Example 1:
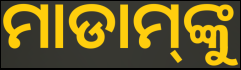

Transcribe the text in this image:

ମାଡାମ୍‌ଙ୍କୁ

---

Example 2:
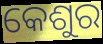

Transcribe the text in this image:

କେଶୁର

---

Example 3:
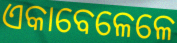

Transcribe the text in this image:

ଏକାବେଳେଳେ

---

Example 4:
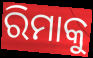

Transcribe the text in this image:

ରିମାକୁ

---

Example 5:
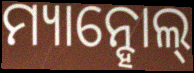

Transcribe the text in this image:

ମ୍ୟାନ୍ହୋଲ୍